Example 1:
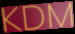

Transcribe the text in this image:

KDM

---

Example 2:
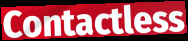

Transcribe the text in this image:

Contactless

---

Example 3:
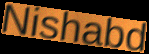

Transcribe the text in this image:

Nishabd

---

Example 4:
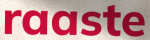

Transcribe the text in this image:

raaste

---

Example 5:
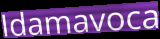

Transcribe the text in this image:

Idamavoca